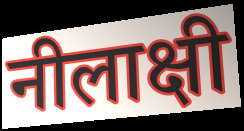
नीलाक्षी